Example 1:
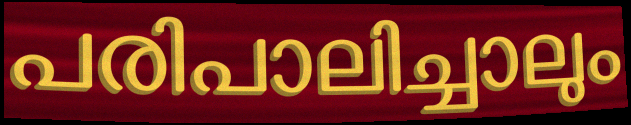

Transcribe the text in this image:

പരിപാലിച്ചാലും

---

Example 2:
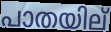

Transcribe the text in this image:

പാതയില്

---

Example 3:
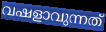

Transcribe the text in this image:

വഷളാവുന്നത്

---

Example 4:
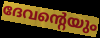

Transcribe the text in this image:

ദേവന്റെയും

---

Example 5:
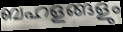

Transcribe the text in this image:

ബഹളങ്ങളും